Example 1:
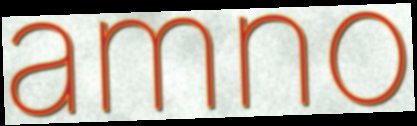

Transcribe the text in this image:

amno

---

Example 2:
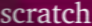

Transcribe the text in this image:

scratch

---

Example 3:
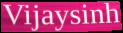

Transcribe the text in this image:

Vijaysinh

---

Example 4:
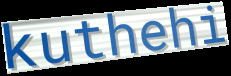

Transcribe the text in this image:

kuthehi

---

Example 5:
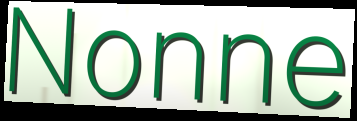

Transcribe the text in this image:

Nonne